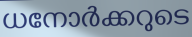
ധനോർക്കറുടെ